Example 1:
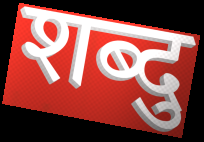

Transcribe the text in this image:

शब्दु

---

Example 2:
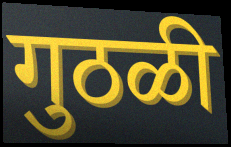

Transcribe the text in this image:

गुठळी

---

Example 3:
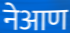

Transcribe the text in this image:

नेआण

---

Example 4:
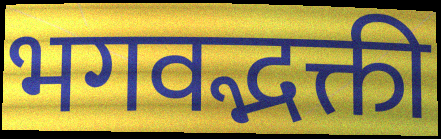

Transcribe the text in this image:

भगवद्भक्ती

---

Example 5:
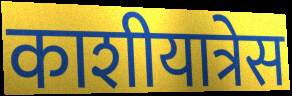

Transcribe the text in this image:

काशीयात्रेस